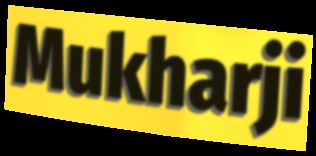
Mukharji